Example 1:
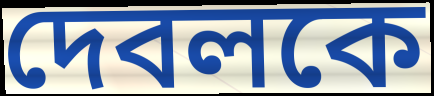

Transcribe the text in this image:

দেবলকে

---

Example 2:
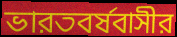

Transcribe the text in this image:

ভারতবর্ষবাসীর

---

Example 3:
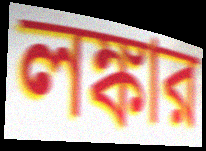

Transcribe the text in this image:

লঙ্কার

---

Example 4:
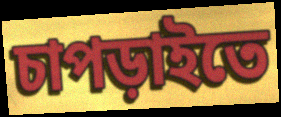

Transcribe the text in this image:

চাপড়াইতে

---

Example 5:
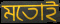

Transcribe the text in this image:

মতোই